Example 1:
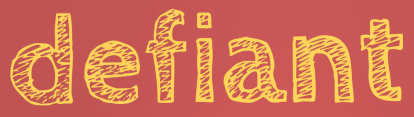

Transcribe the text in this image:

defiant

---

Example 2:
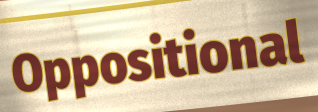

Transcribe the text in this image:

Oppositional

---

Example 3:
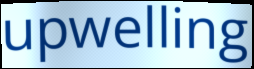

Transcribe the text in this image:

upwelling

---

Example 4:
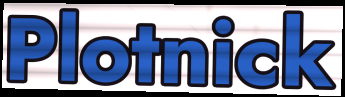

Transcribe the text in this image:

Plotnick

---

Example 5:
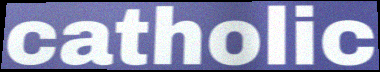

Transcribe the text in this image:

catholic